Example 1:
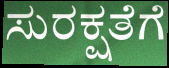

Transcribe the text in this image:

ಸುರಕ್ಷತೆಗೆ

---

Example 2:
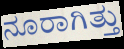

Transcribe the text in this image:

ನೂರಾಗಿತ್ತು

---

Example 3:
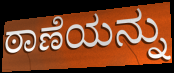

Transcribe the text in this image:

ಠಾಣೆಯನ್ನು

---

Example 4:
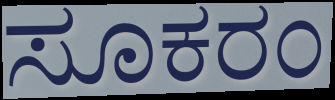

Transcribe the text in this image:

ಸೂಕರಂ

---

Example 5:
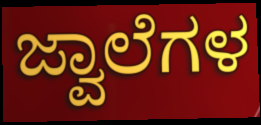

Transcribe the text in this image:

ಜ್ವಾಲೆಗಳ